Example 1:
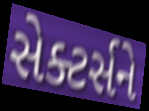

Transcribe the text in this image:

સેક્ટર્સને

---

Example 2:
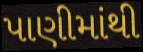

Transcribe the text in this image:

પાણીમાંથી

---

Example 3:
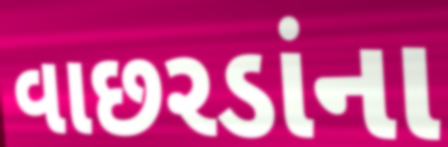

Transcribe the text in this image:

વાછરડાંના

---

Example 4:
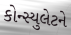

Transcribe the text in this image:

કોન્સ્યુલેટને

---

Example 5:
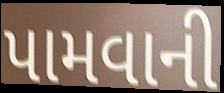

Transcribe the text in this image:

પામવાની